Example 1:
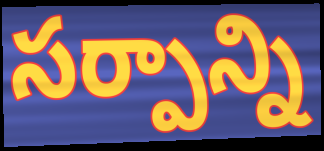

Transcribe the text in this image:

సర్పాన్ని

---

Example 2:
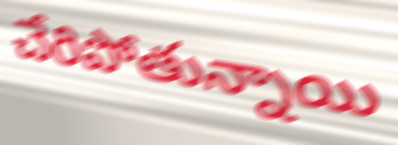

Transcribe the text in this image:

చేరిపోతున్నాయి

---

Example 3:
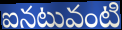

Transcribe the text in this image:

ఐనటువంటి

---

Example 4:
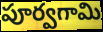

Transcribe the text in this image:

పూర్వగామి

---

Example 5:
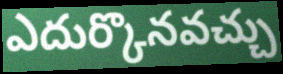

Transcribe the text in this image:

ఎదుర్కొనవచ్చు